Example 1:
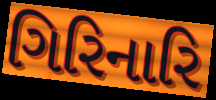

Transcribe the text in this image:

ગિરિનારિ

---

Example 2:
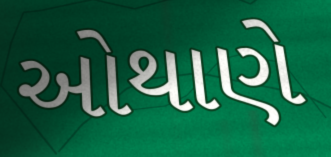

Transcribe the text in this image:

ઓથાણે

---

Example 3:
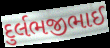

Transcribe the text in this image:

દુર્લભજીભાઈ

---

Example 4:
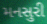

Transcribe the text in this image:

મનસુરી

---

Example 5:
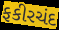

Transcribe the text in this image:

ફકીરચંદ